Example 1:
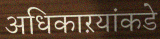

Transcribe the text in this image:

अधिकाऱयांकडे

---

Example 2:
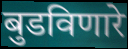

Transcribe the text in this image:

बुडविणारे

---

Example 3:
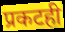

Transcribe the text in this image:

प्रकटही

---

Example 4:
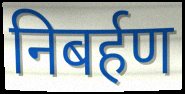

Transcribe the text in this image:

निबर्हण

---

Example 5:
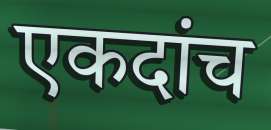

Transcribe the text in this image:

एकदांच